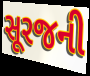
સૂરજની